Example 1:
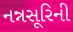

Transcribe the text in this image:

નન્નસૂરિની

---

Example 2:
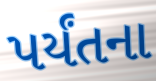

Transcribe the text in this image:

પર્યંતના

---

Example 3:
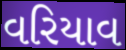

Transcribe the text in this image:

વરિયાવ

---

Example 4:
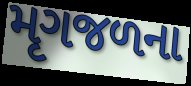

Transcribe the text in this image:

મૃગજળના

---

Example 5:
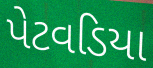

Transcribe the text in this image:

પેટવડિયા